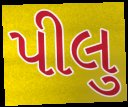
પીલુ